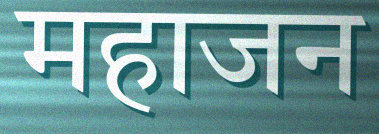
महाजन